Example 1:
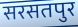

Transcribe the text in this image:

सरसतपुर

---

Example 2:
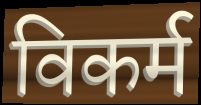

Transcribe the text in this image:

विकर्म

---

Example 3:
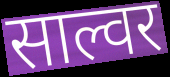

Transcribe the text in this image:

साल्वर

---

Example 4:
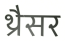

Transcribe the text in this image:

थ्रैसर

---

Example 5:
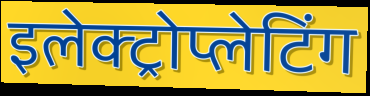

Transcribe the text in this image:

इलेक्ट्रोप्लेटिंग